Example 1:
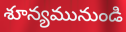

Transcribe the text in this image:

శూన్యమునుండి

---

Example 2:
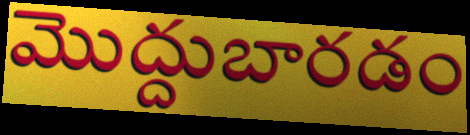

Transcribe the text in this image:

మొద్దుబారడం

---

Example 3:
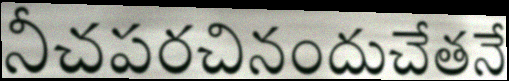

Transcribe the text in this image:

నీచపరచినందుచేతనే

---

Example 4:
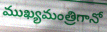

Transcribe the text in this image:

ముఖ్యమంత్రిగానో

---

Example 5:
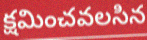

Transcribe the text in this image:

క్షమించవలసిన